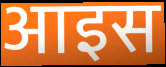
आइस